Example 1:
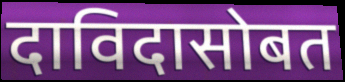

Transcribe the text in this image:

दाविदासोबत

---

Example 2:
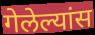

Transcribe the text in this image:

गेलेल्यांस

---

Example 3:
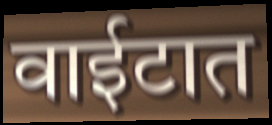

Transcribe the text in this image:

वाईटात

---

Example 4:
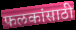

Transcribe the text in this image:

फलकांसाठी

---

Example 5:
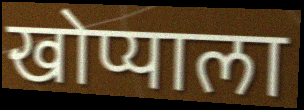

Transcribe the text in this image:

खोप्याला